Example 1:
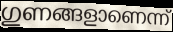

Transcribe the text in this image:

ഗുണങ്ങളാണെന്ന്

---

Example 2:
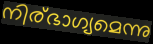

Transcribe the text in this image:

നിര്ഭാഗ്യമെന്നു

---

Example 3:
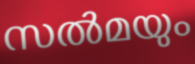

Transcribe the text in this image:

സൽമയും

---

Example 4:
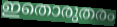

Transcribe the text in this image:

ഇതൊരുതരം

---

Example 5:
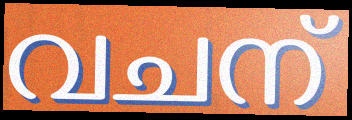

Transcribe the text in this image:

വചന്